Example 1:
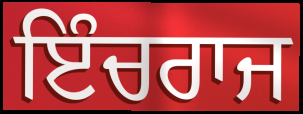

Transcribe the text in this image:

ਇੰਚਰਾਜ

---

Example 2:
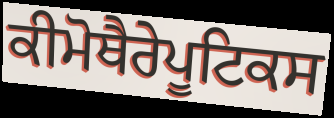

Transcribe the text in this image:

ਕੀਮੋਥੈਰੇਪੂਟਿਕਸ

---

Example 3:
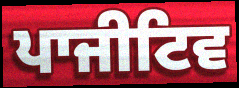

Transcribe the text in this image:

ਪਾਜੀਟਿਵ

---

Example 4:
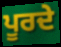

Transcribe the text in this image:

ਪੂਰਦੇ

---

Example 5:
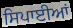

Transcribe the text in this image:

ਸਿਪਾਈਆਂ